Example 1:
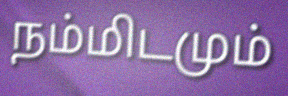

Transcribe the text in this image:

நம்மிடமும்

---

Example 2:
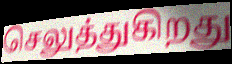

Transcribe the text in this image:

செலுத்துகிறது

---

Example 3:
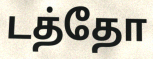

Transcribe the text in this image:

டத்தோ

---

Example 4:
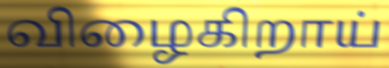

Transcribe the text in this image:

விழைகிறாய்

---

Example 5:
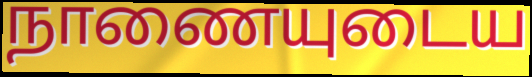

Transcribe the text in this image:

நாணையுடைய